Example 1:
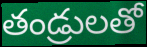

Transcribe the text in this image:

తండ్రులతో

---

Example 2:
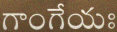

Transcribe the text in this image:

గాంగేయః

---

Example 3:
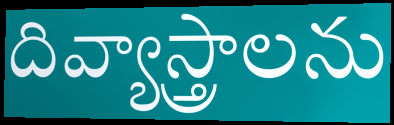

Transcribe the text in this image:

దివ్యాస్త్రాలను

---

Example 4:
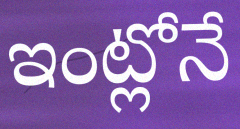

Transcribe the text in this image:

ఇంట్లోనే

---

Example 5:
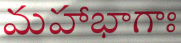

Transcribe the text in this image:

మహాభాగాః